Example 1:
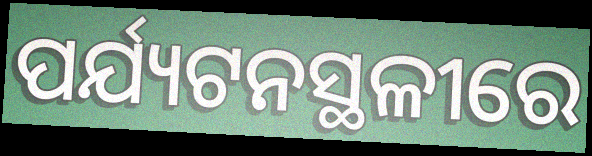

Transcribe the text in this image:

ପର୍ଯ୍ୟଟନସ୍ଥଳୀରେ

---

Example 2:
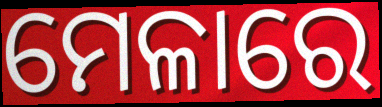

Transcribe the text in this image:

ମେଳାରେ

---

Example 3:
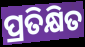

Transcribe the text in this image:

ପ୍ରତିକ୍ଷିତ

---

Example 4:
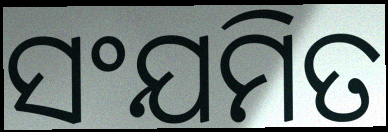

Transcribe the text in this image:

ସଂଯମିତ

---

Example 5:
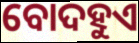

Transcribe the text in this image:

ବୋଦହୁଏ